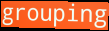
grouping